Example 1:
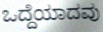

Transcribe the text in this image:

ಒದ್ದೆಯಾದವು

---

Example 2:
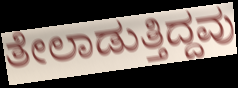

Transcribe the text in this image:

ತೇಲಾಡುತ್ತಿದ್ದವು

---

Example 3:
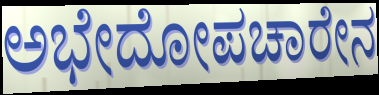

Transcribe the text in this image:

ಅಭೇದೋಪಚಾರೇನ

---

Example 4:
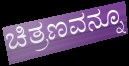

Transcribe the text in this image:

ಚಿತ್ರಣವನ್ನೂ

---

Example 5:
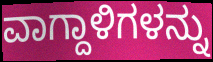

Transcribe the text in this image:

ವಾಗ್ದಾಳಿಗಳನ್ನು